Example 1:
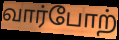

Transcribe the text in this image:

வார்போற்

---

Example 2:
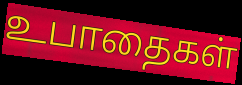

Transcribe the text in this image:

உபாதைகள்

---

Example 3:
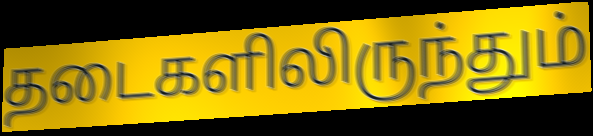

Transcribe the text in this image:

தடைகளிலிருந்தும்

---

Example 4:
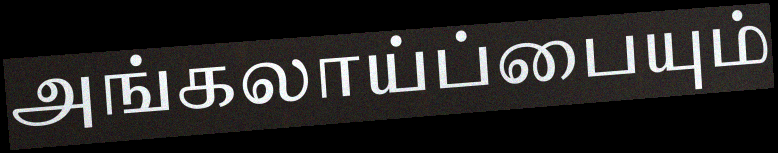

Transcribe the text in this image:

அங்கலாய்ப்பையும்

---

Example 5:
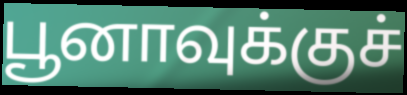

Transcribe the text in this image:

பூனாவுக்குச்